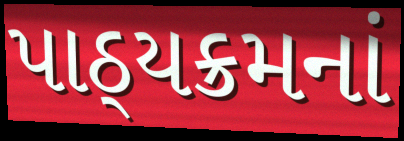
પાઠ્યક્રમનાં